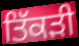
ਤਿੱਕੜੀ